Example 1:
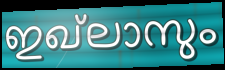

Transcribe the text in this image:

ഇഖ്‌ലാസും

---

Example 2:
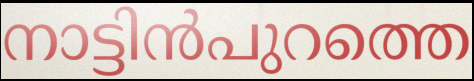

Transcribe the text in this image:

നാട്ടിൻപുറത്തെ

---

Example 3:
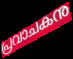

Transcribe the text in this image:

പ്രവാചകനു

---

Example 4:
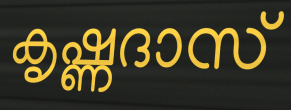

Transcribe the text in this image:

കൃഷ്ണദാസ്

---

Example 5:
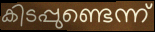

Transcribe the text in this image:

കിടപ്പുണ്ടെന്ന്